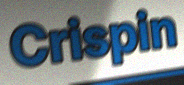
Crispin